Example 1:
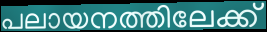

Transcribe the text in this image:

പലായനത്തിലേക്ക്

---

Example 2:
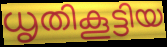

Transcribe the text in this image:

ധൃതികൂട്ടിയ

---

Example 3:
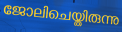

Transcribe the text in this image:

ജോലിചെയ്തിരുന്നു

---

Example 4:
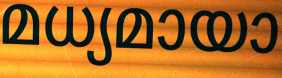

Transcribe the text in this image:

മധ്യമായാ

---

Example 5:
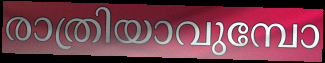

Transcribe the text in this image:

രാത്രിയാവുമ്പോ